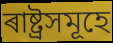
ৰাষ্ট্ৰসমূহে